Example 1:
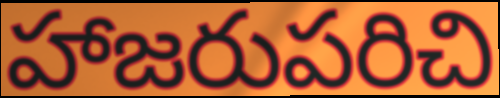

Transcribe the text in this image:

హాజరుపరిచి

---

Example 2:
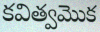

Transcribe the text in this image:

కవిత్వమొక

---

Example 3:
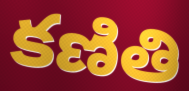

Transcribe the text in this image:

కణితి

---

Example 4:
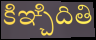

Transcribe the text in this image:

కిఞ్చిదితి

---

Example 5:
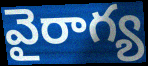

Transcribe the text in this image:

వైరాగ్య